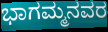
ಭಾಗಮ್ಮನವರ